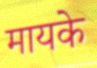
मायके